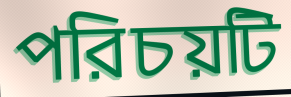
পরিচয়টি